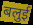
बलुई